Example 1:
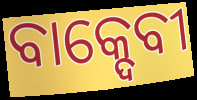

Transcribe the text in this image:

ବାକ୍ଦେବୀ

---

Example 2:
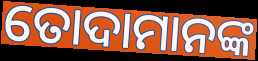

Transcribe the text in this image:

ତୋଦାମାନଙ୍କ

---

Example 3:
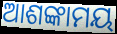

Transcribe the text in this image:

ଆଶଙ୍କାମୟ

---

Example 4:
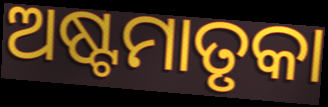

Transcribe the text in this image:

ଅଷ୍ଟମାତୃକା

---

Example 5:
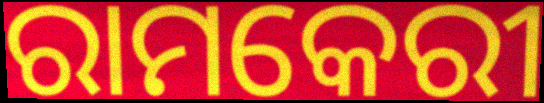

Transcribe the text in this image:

ରାମକେରୀ